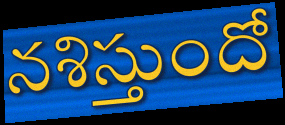
నశిస్తుందో